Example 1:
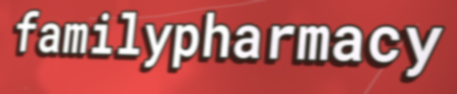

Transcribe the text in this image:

familypharmacy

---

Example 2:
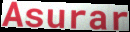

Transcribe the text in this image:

Asurar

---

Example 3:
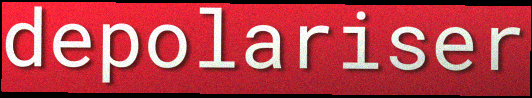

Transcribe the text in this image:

depolariser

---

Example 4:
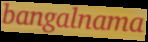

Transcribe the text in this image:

bangalnama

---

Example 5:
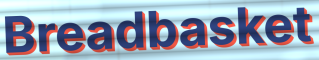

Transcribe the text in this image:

Breadbasket